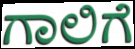
ಗಾಲಿಗೆ